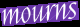
mourns